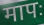
मापः